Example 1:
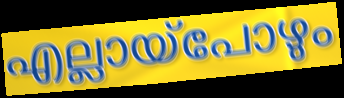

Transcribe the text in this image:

എല്ലായ്പോഴും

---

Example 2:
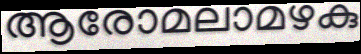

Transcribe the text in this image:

ആരോമലാമഴകു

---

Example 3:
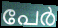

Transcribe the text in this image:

പേർ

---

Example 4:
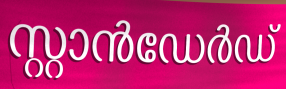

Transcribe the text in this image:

സ്റ്റാൻഡേർഡ്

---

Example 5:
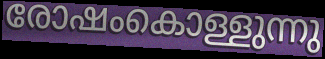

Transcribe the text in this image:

രോഷംകൊള്ളുന്നു